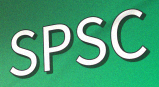
SPSC